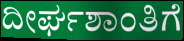
ದೀರ್ಘಶಾಂತಿಗೆ